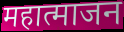
महात्माजन